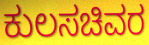
ಕುಲಸಚಿವರ